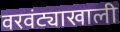
वरवंट्याखाली